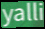
yalli